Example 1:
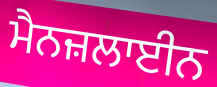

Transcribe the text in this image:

ਮੈਨਜ਼ਲਾਈਨ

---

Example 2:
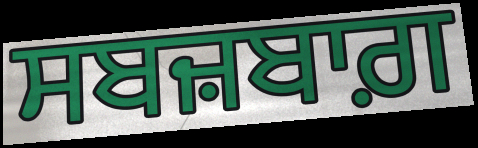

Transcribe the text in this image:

ਸਬਜ਼ਬਾਗ਼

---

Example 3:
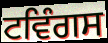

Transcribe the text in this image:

ਟਵਿੰਗਸ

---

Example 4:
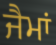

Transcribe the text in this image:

ਜੈਮਾਂ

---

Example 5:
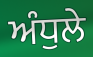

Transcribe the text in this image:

ਅੰਧੁਲੇ